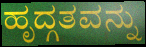
ಹೃದ್ಗತವನ್ನು